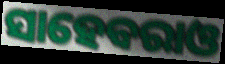
ସାହେବରାଓ